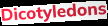
Dicotyledons